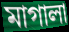
মাগালা